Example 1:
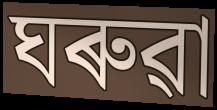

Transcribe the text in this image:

ঘৰুৱা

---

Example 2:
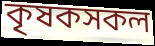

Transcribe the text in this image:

কৃষকসকল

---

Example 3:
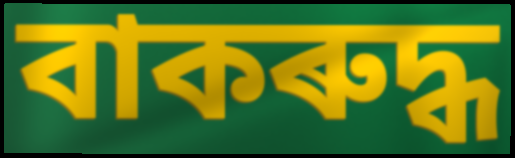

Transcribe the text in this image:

বাকৰুদ্ধ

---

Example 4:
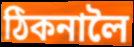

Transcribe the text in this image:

ঠিকনালৈ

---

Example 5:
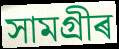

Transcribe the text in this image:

সামগ্ৰীৰ